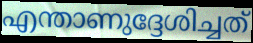
എന്താണുദ്ദേശിച്ചത്